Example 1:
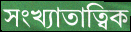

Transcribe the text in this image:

সংখ্যাতাত্বিক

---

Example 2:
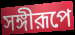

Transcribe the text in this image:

সঙ্গীরূপে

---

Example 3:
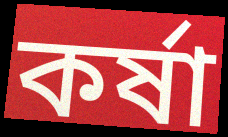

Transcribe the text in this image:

কর্ষা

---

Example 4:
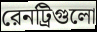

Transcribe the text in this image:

রেনট্রিগুলো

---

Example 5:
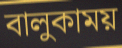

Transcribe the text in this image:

বালুকাময়